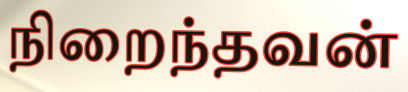
நிறைந்தவன்